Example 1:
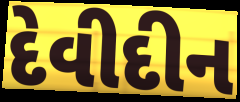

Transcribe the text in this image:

દેવીદીન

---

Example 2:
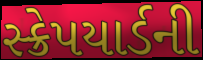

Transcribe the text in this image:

સ્ક્રેપયાર્ડની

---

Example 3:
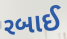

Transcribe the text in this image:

રબાઈ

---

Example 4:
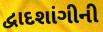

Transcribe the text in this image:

દ્વાદશાંગીની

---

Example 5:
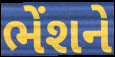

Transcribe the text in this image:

ભેંશને